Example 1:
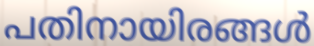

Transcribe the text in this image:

പതിനായിരങ്ങൾ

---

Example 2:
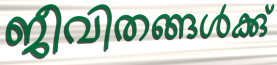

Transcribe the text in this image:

ജീവിതങ്ങൾക്കു്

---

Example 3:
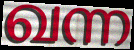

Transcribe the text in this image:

ഖന്ന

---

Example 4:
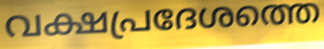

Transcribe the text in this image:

വക്ഷപ്രദേശത്തെ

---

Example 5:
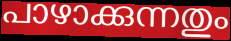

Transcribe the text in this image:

പാഴാക്കുന്നതും